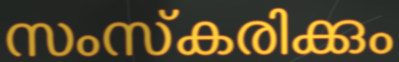
സംസ്‌കരിക്കും